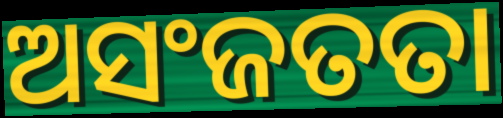
ଅସଂଜତତା